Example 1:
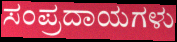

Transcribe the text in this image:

ಸಂಪ್ರದಾಯಗಳು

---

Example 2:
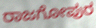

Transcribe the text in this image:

ರಾಜಗೋಪುರ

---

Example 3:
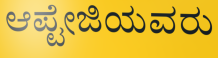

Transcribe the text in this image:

ಆಪ್ಟೇಜಿಯವರು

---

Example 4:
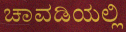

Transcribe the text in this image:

ಚಾವಡಿಯಲ್ಲಿ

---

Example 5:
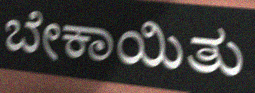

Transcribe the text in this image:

ಬೇಕಾಯಿತು